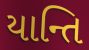
યાન્તિ